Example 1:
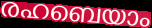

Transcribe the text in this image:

രഹബെയാം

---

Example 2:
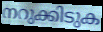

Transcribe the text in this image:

നറുക്കിടുക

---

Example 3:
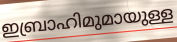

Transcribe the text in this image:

ഇബ്രാഹിമുമായുള്ള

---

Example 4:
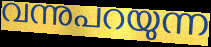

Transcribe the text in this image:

വന്നുപറയുന്ന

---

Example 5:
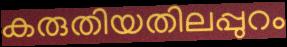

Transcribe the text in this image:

കരുതിയതിലപ്പുറം